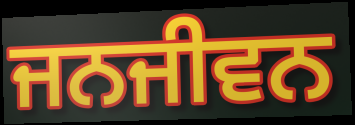
ਜਨਜੀਵਨ